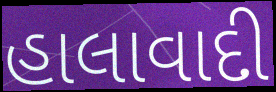
હાલાવાદી